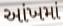
આંખમાં